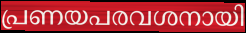
പ്രണയപരവശനായി